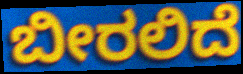
ಬೀರಲಿದೆ